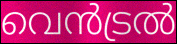
വെൻട്രൽ